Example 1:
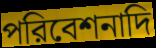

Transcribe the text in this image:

পরিবেশনাদি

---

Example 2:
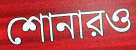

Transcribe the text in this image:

শোনারও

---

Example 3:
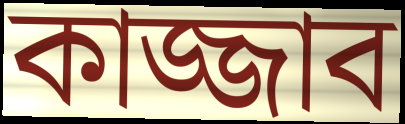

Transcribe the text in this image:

কাজ্জাব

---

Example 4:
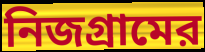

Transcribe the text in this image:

নিজগ্রামের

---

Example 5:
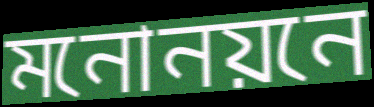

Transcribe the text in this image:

মনোনয়নে